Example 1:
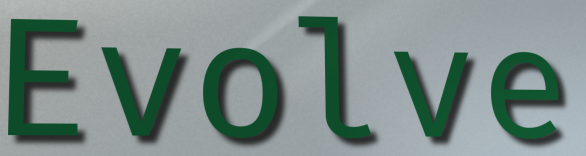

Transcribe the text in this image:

Evolve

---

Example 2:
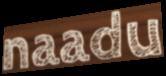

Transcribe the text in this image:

naadu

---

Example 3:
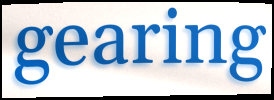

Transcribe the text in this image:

gearing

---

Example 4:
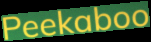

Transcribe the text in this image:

Peekaboo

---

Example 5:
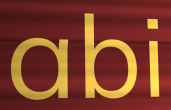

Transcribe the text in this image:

abi